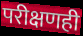
परीक्षणही